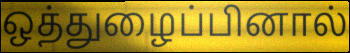
ஒத்துழைப்பினால்